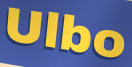
Ulbo